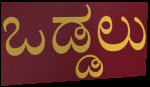
ಒಡ್ಡಲು